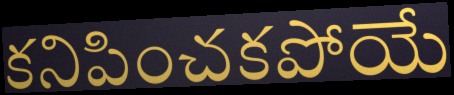
కనిపించకపోయే